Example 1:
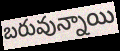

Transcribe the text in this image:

బరువున్నాయి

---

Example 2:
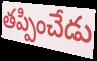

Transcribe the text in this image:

తప్పించేడు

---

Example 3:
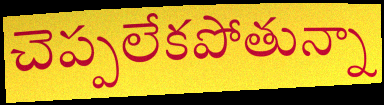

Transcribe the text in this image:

చెప్పలేకపోతున్నా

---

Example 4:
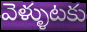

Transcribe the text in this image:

వెళ్ళుటకు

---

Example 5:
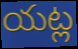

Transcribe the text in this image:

యట్ల